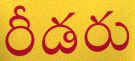
రీడరు